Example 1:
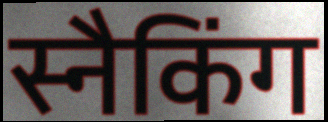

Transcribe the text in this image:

स्नैकिंग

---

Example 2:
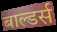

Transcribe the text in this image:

बाल्डर्स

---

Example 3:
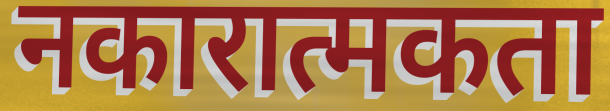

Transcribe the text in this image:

नकारात्मकता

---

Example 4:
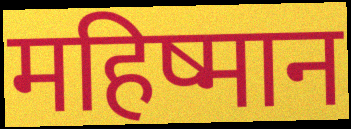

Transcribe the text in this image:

महिष्मान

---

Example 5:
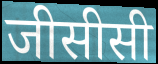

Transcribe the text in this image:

जीसीसी